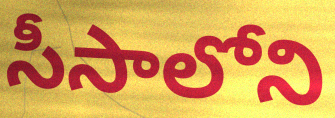
సీసాలోని